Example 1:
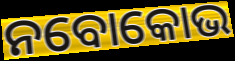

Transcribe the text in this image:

ନବୋକୋଭ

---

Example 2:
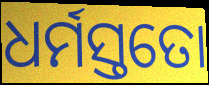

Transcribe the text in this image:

ଧର୍ମସ୍ତତୋ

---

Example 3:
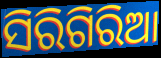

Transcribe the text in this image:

ସିରିଗିରିଆ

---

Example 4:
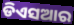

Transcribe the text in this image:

ଡିଏସଆର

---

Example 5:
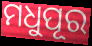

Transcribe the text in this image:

ମଧୁପୂର